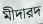
মীদারদ